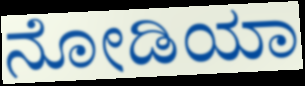
ನೋಡಿಯಾ